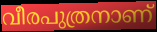
വീരപുത്രനാണ്